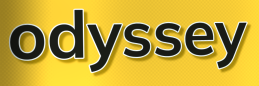
odyssey